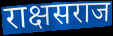
राक्षसराज